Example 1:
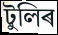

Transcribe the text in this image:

টুলিৰ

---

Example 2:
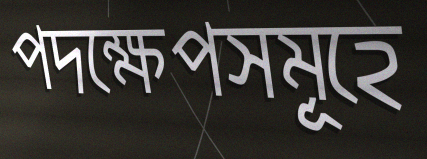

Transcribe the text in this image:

পদক্ষেপসমূহে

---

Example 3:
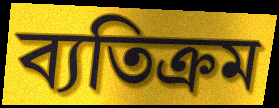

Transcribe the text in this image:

ব্যতিক্ৰম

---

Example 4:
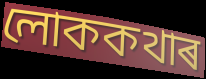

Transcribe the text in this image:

লোককথাৰ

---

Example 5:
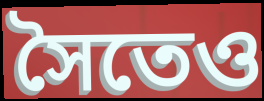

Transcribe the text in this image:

সৈতেও